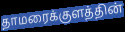
தாமரைக்குளத்தின்